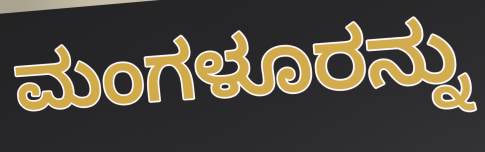
ಮಂಗಳೂರನ್ನು